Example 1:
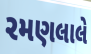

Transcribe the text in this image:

રમણલાલે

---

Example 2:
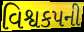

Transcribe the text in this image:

વિશ્વકપની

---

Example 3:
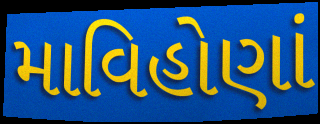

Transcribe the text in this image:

માવિહોણાં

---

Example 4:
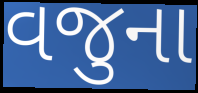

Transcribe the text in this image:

વજુના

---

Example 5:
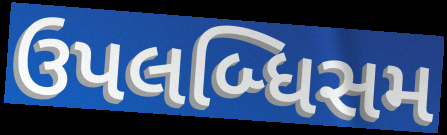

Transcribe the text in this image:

ઉપલબ્ધિસમ